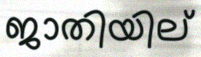
ജാതിയില്